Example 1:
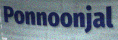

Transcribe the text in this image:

Ponnoonjal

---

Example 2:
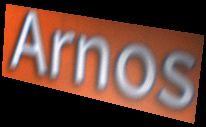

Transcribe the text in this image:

Arnos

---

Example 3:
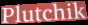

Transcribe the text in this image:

Plutchik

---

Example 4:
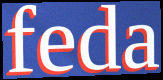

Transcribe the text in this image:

feda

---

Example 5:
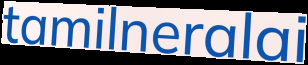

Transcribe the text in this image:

tamilneralai